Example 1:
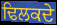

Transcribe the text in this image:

ਢਿਲਕਦੇ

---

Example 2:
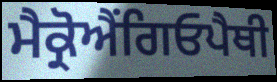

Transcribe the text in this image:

ਮੈਕ੍ਰੋਐਂਗਿਓਪੈਥੀ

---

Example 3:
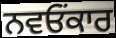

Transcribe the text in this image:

ਨਵਓਂਕਾਰ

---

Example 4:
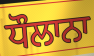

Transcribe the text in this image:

ਧੌਲਾਨਾ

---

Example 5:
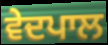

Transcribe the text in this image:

ਵੇਦਪਾਲ